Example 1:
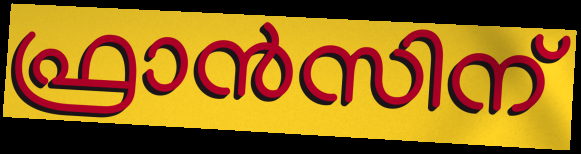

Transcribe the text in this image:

ഫ്രാൻസിന്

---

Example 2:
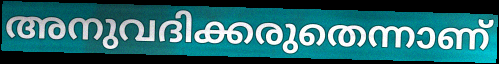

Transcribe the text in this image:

അനുവദിക്കരുതെന്നാണ്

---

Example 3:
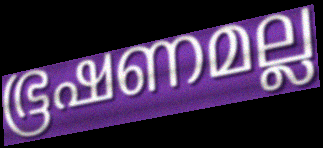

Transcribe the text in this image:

ഭൂഷണമല്ല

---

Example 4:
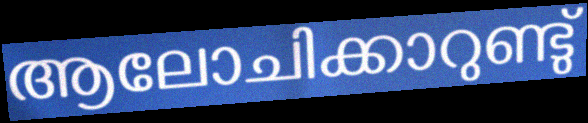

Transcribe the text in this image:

ആലോചിക്കാറുണ്ടു്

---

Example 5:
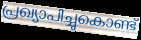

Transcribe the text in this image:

പ്രഖ്യാപിച്ചുകൊണ്ട്